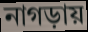
নাগড়ায়